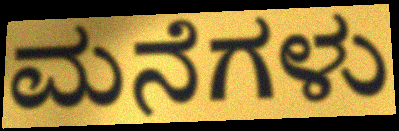
ಮನೆಗಳು